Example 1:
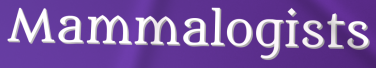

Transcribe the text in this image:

Mammalogists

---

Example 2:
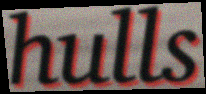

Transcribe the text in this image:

hulls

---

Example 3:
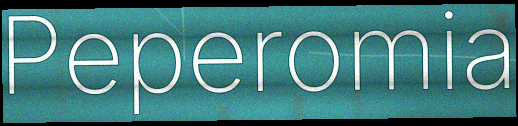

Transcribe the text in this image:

Peperomia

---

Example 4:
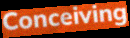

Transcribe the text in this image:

Conceiving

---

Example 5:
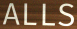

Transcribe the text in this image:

ALLS